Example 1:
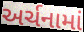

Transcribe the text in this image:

અર્ચનામાં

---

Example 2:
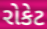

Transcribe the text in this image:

રોકેટ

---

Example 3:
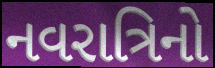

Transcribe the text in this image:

નવરાત્રિનો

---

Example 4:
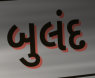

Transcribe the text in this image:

બુલંદ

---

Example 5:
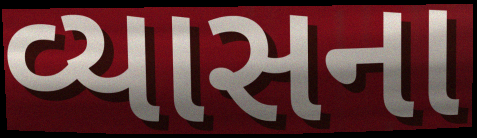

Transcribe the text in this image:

વ્યાસના